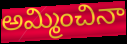
అమ్మించినా